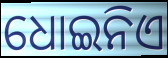
ଧୋଇନିଏ